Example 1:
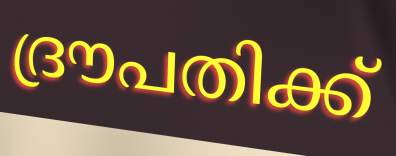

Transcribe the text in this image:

ദ്രൗപതിക്ക്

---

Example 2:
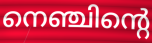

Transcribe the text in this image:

നെഞ്ചിന്റെ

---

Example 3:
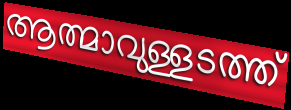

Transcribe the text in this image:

ആത്മാവുള്ളടത്ത്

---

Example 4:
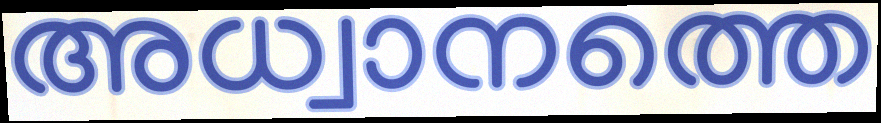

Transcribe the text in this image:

അധ്വാനത്തെ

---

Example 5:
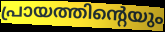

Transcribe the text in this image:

പ്രായത്തിന്റെയും